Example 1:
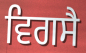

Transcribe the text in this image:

ਵਿਗਸੈ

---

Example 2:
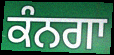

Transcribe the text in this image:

ਕੰਨਗਾ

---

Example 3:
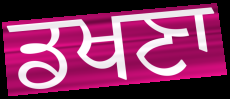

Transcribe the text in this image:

ਡਖਣਾ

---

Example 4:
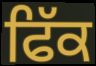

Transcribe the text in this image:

ਫਿੱਕ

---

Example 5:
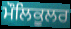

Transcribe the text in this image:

ਮੌਲਿਕੂਲਰ